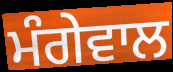
ਮੰਗੇਵਾਲ